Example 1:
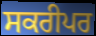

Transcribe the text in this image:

ਸਕਰੀਪਰ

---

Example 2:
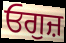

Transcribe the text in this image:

ਓਗੁਜ਼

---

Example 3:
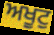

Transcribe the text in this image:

ਅਖੂਟੁ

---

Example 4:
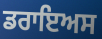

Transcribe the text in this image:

ਡਰਾਇਅਸ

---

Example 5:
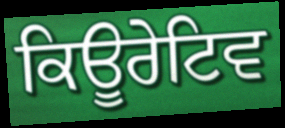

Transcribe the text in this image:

ਕਿਊਰੇਟਿਵ